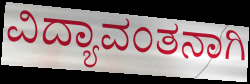
ವಿದ್ಯಾವಂತನಾಗಿ